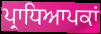
ਪ੍ਰਾਧਿਆਪਕਾਂ